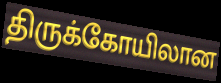
திருக்கோயிலான